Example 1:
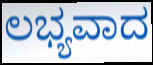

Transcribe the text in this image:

ಲಭ್ಯವಾದ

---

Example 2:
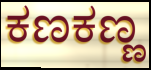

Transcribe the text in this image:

ಕಣಕಣ್ಣ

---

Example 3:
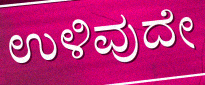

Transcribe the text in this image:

ಉಳಿವುದೇ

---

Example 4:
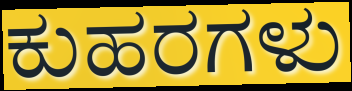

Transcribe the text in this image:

ಕುಹರಗಳು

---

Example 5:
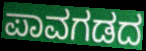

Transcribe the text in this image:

ಪಾವಗಡದ